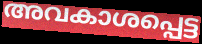
അവകാശപ്പെട്ട